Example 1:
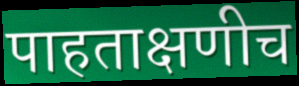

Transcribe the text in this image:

पाहताक्षणीच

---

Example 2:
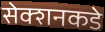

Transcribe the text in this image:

सेक्शनकडे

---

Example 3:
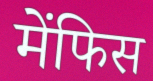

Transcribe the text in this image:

मेंफिस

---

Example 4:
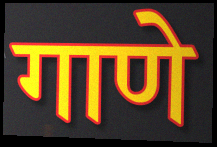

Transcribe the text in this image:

गाणे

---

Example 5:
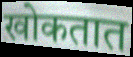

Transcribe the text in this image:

खोकतात